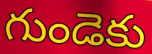
గుండెకు